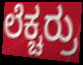
ಲೆಕ್ಚರ್ರು